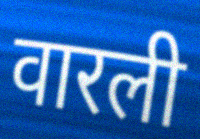
वारली